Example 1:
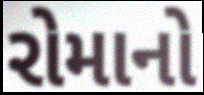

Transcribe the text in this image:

રોમાનો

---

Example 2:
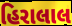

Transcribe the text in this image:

હિરાલાલ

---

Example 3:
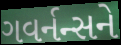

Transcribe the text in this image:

ગવર્નન્સને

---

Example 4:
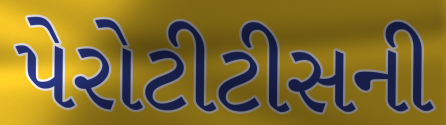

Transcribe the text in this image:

પેરોટીટીસની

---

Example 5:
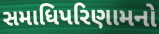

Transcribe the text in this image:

સમાધિપરિણામનો